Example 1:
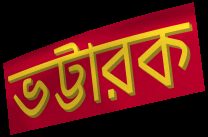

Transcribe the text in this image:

ভট্টারক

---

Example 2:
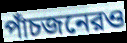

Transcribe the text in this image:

পাঁচজনেরও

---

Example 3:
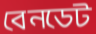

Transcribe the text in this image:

বেনডেট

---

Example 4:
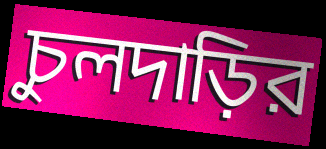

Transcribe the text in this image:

চুলদাড়ির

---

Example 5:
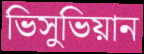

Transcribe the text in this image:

ভিসুভিয়ান